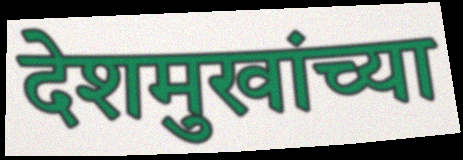
देशमुखांच्या